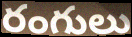
రంగులు